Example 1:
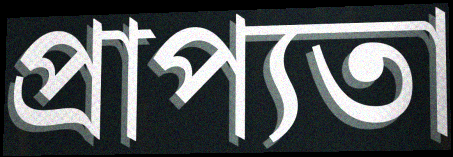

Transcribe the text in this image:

প্রাপ্যতা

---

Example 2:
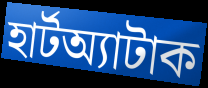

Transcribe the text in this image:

হার্টঅ্যাটাক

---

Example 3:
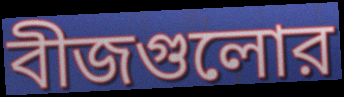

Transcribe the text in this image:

বীজগুলোর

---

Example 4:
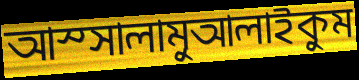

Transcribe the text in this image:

আস্সালামুআলাইকুম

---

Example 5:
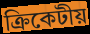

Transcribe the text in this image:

ক্রিকেটীয়